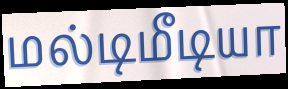
மல்டிமீடியா